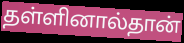
தள்ளினால்தான்